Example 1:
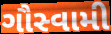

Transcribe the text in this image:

ગૌસ્વામી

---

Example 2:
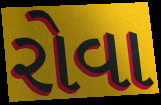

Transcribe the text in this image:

રોવા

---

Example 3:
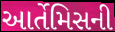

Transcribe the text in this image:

આર્તેમિસની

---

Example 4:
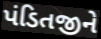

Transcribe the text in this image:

પંડિતજીને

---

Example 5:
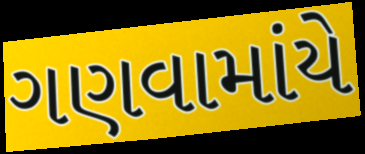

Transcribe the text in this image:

ગણવામાંયે